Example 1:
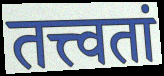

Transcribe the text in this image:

तत्त्वतां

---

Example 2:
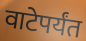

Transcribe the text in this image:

वाटेपर्यंत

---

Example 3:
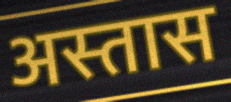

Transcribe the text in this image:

अस्तास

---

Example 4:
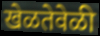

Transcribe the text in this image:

खेळतेवेळी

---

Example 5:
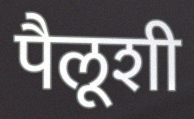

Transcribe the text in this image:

पैलूशी